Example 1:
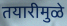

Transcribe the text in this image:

तयारीमुळे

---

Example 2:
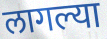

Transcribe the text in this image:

लागल्‍या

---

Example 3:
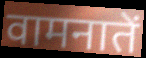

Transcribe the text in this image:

वामनातें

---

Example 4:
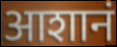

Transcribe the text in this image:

आशानं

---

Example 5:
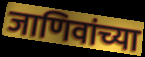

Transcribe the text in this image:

जाणिवांच्या